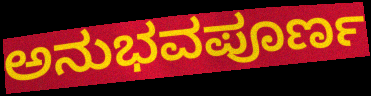
ಅನುಭವಪೂರ್ಣ